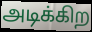
அடிக்கிற